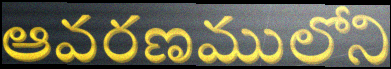
ఆవరణములోని